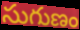
సుగుణం